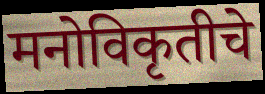
मनोविकृतीचे